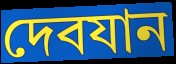
দেবযান